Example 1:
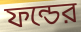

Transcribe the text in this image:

ফন্ডের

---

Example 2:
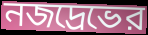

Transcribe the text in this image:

নজদ্রেভের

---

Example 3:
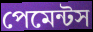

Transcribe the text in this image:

পেমেন্টস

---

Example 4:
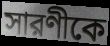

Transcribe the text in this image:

সারণীকে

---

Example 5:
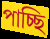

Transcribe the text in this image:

পাচ্ছি